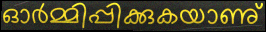
ഓർമ്മിപ്പിക്കുകയാണു്